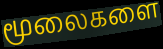
மூலைகளை